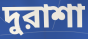
দুরাশা